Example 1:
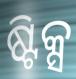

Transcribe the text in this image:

ଷ୍ଟିକ୍ସ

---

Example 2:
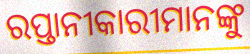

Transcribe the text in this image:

ରପ୍ତାନୀକାରୀମାନଙ୍କୁ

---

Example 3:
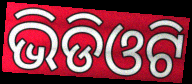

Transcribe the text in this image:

ଭିଡିଓଟି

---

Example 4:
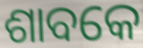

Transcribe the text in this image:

ଶାବକେ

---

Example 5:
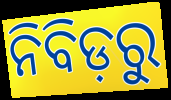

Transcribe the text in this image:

ନିବିଡ଼ରୁ